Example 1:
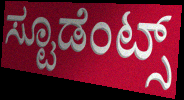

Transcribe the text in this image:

ಸ್ಟೂಡೆಂಟ್ಸ್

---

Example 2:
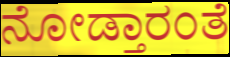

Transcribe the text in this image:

ನೋಡ್ತಾರಂತೆ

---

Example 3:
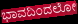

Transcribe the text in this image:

ಭಾವದಿಂದಲೋ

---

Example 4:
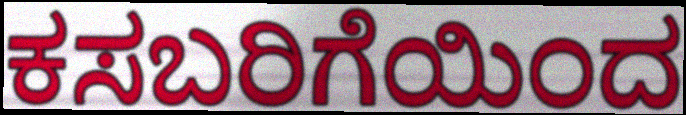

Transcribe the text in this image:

ಕಸಬರಿಗೆಯಿಂದ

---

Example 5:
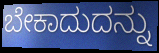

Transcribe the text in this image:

ಬೇಕಾದುದನ್ನು